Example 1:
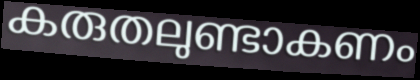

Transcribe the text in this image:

കരുതലുണ്ടാകണം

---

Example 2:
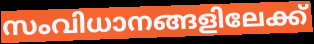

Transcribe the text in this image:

സംവിധാനങ്ങളിലേക്ക്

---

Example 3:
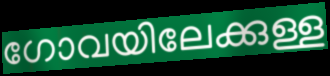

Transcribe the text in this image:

ഗോവയിലേക്കുള്ള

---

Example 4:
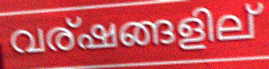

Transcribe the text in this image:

വര്ഷങ്ങളില്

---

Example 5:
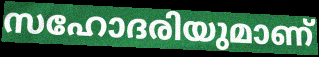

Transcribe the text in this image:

സഹോദരിയുമാണ്